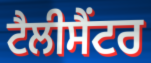
ਟੈਲੀਸੈਂਟਰ